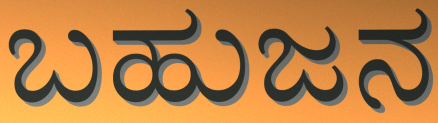
ಬಹುಜನ